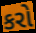
કરો